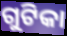
ଗୁଟିକା